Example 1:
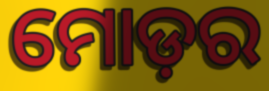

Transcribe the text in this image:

ମୋଡ଼ର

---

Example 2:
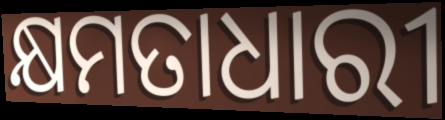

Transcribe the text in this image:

କ୍ଷମତାଧାରୀ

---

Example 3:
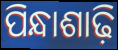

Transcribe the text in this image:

ପିନ୍ଧାଶାଢ଼ି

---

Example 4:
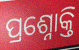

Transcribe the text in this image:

ପ୍ରଶ୍ନୋକ୍ତି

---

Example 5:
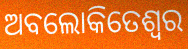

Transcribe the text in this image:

ଅବଲୋକିତେଶ୍ୱର